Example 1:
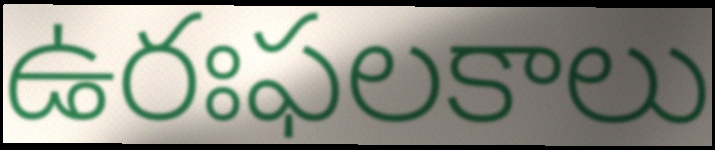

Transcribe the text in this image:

ఉరఃఫలకాలు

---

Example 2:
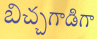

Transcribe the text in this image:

బిచ్చగాడిగా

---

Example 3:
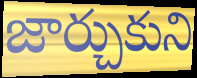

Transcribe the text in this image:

జార్చుకుని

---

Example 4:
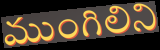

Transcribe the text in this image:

ముంగిలిని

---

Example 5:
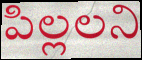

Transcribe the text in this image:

పిల్లలని